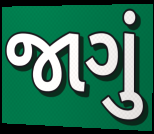
જાગું